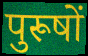
पुरूषों